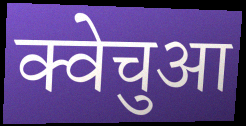
क्वेचुआ